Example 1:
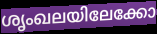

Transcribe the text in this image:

ശൃംഖലയിലേക്കോ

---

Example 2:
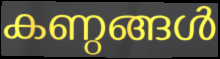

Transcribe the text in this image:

കണ്ഠങ്ങൾ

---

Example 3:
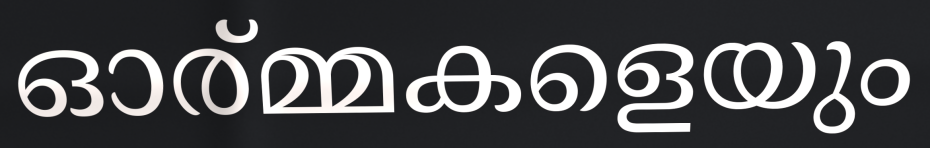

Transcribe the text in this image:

ഓര്മ്മകളെയും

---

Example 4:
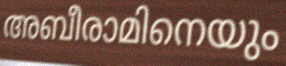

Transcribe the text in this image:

അബീരാമിനെയും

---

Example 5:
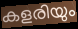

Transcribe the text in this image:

കളരിയും